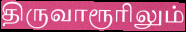
திருவாரூரிலும்